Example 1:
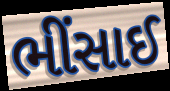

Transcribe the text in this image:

ભીંસાઈ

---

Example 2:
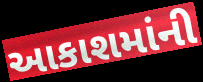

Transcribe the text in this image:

આકાશમાંની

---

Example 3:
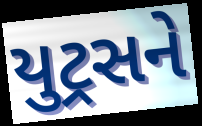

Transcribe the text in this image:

યુટ્રસને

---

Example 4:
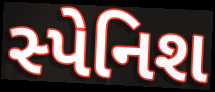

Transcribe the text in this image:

સ્પેનિશ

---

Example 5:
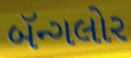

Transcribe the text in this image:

બૅન્ગલોર